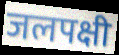
जलपक्षी